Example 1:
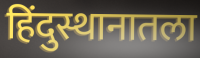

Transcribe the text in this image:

हिंदुस्थानातला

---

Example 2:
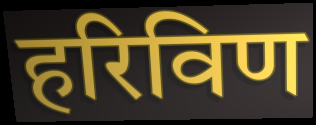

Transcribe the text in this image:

हरिविण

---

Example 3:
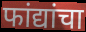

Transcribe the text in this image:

फांद्यांचा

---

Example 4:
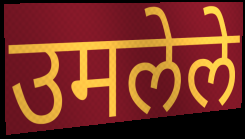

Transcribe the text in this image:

उमलेले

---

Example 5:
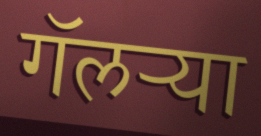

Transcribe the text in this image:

गॅलऱ्या